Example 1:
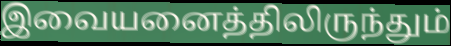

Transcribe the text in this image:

இவையனைத்திலிருந்தும்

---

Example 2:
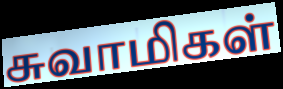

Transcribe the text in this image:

சுவாமிகள்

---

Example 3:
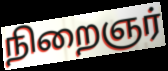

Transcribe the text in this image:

நிறைஞர்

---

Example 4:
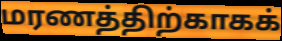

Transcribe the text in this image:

மரணத்திற்காகக்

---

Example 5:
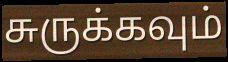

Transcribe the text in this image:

சுருக்கவும்